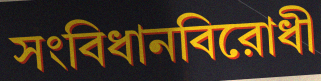
সংবিধানবিরোধী